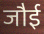
जौई